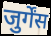
जुर्गेंस